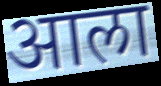
आला